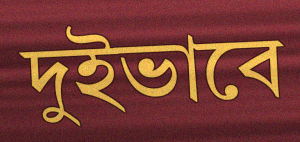
দুইভাবে